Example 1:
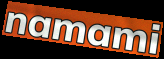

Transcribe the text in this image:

namami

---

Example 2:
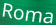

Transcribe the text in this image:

Roma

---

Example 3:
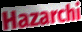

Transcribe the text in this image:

Hazarchi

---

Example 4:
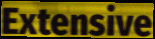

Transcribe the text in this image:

Extensive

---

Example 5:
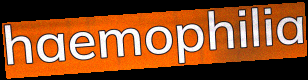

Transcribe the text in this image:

haemophilia